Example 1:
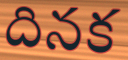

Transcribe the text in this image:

దినక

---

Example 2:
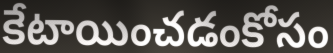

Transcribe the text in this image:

కేటాయించడంకోసం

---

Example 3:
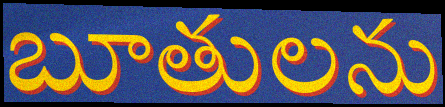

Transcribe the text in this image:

బూతులను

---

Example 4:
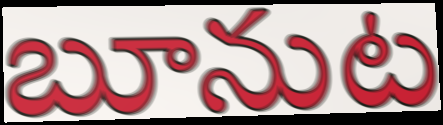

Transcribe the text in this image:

బూనుట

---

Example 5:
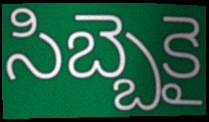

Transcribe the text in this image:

సిబ్బెకై